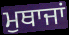
ਮੁਥਾਜਾਂ